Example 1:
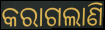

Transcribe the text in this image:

କରାଗଲାଣି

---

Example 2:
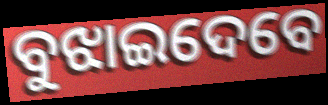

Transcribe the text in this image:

ବୁଝାଇଦେବେ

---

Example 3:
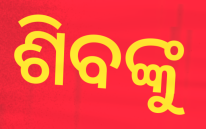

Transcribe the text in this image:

ଶିବଙ୍କୁ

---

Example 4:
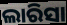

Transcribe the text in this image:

ଲାରିସା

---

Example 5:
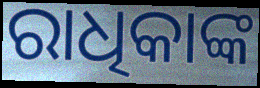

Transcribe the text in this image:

ରାଧିକାଙ୍କ